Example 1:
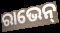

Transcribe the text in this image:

ରାଭେନ୍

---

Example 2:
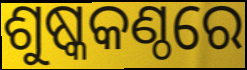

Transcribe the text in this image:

ଶୁଷ୍କକଣ୍ଠରେ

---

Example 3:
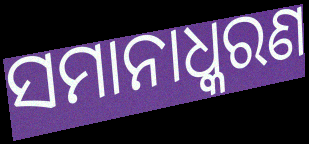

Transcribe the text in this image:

ସମାନାଧ୍କରଣ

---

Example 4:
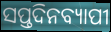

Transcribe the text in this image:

ସପ୍ତଦିନବ୍ୟାପୀ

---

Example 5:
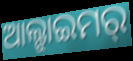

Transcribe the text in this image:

ଆଲ୍ଝାଇମର୍